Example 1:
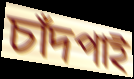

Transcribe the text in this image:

চাঁদপাই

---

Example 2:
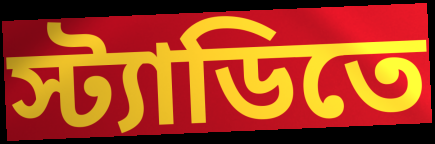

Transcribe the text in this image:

স্ট্যাডিতে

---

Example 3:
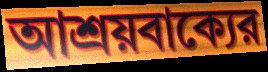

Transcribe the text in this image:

আশ্রয়বাক্যের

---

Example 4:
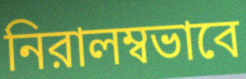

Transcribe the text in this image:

নিরালম্বভাবে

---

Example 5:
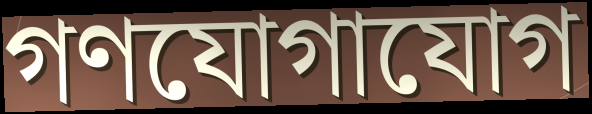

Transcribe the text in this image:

গণযোগাযোগ